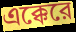
এক্কেরে